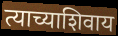
त्याच्याशिवाय